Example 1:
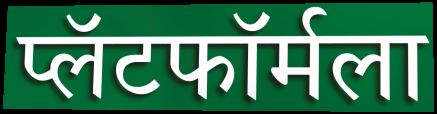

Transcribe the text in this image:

प्लॅटफॉर्मला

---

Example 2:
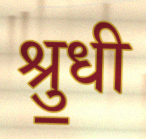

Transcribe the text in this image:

श्रु॒धी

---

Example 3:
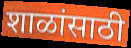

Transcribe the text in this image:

शाळांसाठी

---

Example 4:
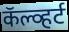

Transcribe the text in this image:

कॅल्व्हर्ट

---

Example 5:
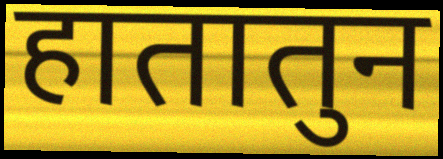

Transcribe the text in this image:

हातातुन